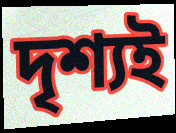
দৃশ্যই